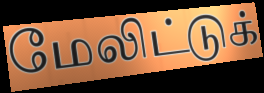
மேலிட்டுக்